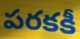
పరకకీ